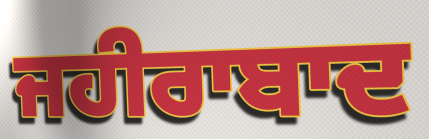
ਜਹੀਰਾਬਾਦ